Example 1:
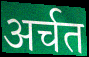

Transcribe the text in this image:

अर्चत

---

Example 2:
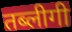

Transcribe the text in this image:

तब्लीगी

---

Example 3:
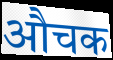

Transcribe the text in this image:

औचक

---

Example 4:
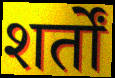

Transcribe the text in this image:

शर्तों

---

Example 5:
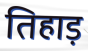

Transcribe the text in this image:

तिहाड़